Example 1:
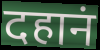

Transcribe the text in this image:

दहानं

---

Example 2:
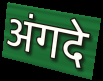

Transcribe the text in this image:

अंगदे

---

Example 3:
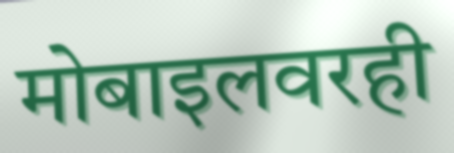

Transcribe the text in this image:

मोबाइलवरही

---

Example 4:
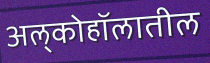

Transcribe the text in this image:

अल्कोहॉलातील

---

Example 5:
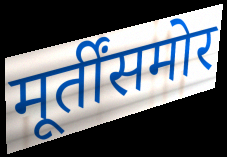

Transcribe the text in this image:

मूर्तींसमोर